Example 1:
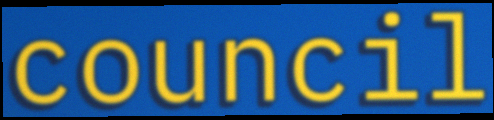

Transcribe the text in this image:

council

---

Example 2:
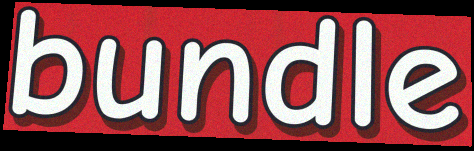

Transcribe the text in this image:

bundle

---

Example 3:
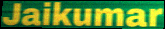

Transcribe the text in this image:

Jaikumar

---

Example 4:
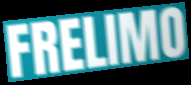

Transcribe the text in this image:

FRELIMO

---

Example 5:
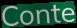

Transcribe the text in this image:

Conte